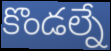
కొండల్నే